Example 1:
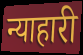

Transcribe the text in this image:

न्याहारी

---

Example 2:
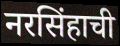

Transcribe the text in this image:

नरसिंहाची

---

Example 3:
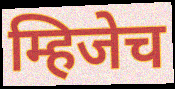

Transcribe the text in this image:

म्हिजेच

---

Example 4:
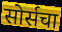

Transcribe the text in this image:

सोर्सचा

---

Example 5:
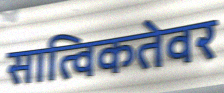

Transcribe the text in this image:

सात्विकतेवर